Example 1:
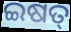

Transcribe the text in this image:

ଇଷତ୍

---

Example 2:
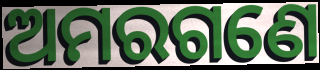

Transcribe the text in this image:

ଅମରଗଣେ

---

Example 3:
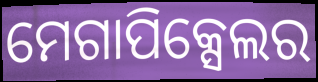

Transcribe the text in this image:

ମେଗାପିକ୍ସେଲର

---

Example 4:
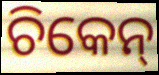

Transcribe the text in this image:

ଚିକେନ୍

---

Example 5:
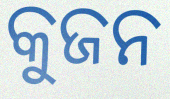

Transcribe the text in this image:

କୁଜନ